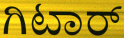
ಗಿಟಾರ್